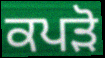
ਕਪੜੋ